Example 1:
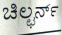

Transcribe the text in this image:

ಚಿಲ್ಟರ್ನ್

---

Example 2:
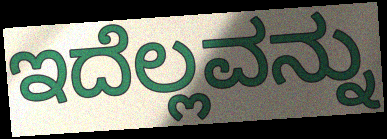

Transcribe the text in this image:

ಇದೆಲ್ಲವನ್ನು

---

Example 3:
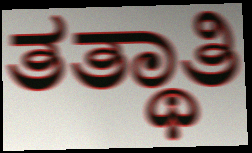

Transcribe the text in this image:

ತತ್ಥಾತಿ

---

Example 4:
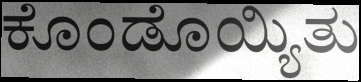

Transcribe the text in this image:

ಕೊಂಡೊಯ್ಯಿತು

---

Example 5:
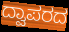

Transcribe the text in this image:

ದ್ವಾಪರದ